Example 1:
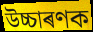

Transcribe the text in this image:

উচ্চাৰণক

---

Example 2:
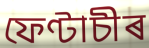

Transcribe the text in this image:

ফেণ্টাচীৰ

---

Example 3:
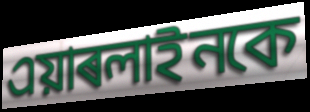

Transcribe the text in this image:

এয়াৰলাইনকে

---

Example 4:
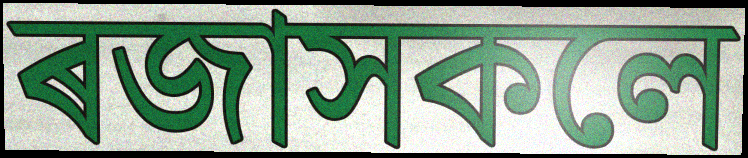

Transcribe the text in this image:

ৰজাসকলে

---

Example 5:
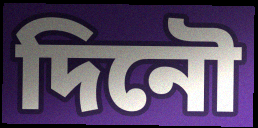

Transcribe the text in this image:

দিনৌ